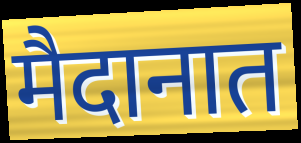
मैदानात